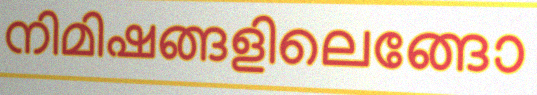
നിമിഷങ്ങളിലെങ്ങോ